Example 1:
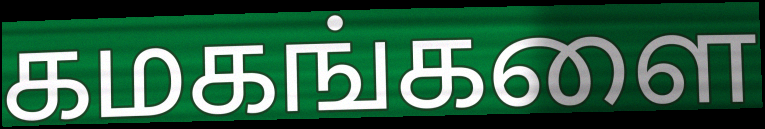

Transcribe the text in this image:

கமகங்களை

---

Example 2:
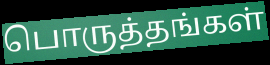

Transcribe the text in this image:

பொருத்தங்கள்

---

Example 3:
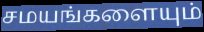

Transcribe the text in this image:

சமயங்களையும்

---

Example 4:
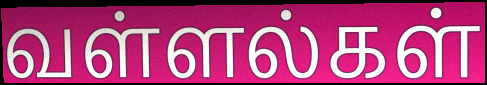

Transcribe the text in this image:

வள்ளல்கள்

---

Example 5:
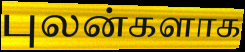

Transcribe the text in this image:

புலன்களாக